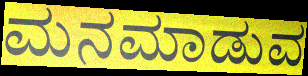
ಮನಮಾಡುವ